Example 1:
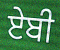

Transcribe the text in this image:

ਏਬੀ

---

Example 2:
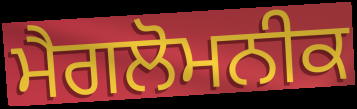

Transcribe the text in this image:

ਮੈਗਲੋਮਨੀਕ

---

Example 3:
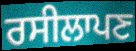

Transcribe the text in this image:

ਰਸੀਲਾਪਣ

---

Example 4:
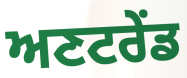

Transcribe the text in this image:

ਅਣਟਰੇਂਡ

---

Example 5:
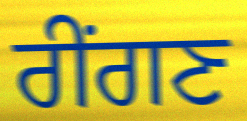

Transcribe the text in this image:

ਰੀਂਗਣ